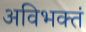
अविभक्तं